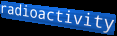
radioactivity